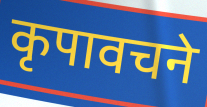
कृपावचने